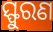
ସ୍ଫୁରଣ